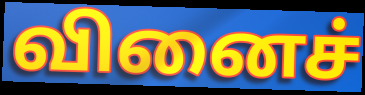
வினைச்